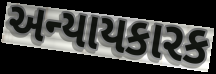
અન્યાયકારક